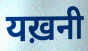
यख़नी